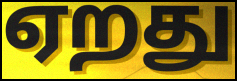
ஏறது